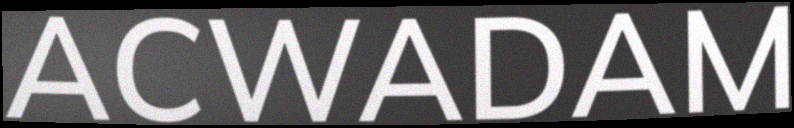
ACWADAM